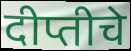
दीप्तीचे